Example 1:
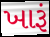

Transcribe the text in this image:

ખારૂં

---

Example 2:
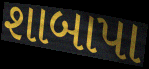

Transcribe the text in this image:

શાબાપા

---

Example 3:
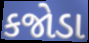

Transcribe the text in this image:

કજોડા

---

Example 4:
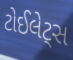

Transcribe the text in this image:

ટોઈલેટ્સ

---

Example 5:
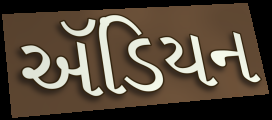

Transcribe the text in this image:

ઍંડિયન